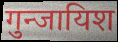
गुन्जायिश